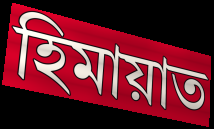
হিমায়াত